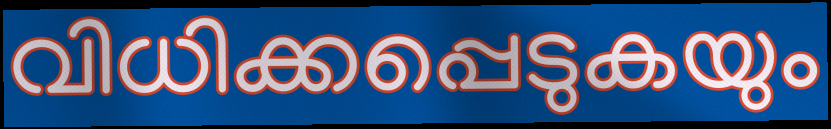
വിധിക്കപ്പെടുകയും